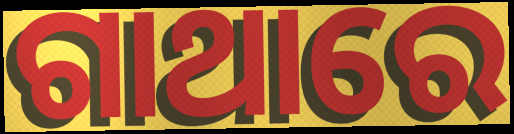
ଗାଥାରେ